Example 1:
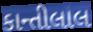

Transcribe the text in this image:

કાન્તીલાલ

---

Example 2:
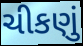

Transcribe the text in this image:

ચીકણું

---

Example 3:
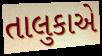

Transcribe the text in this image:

તાલુકાએ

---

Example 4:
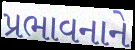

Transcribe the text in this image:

પ્રભાવનાને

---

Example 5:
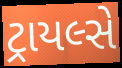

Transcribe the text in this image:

ટ્રાયલ્સે